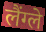
लैंग्ले